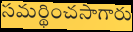
సమర్థించసాగారు